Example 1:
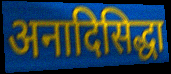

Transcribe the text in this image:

अनादिसिद्धा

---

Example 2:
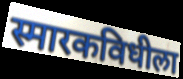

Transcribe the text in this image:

स्मारकविधीला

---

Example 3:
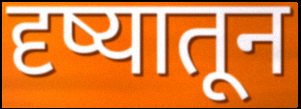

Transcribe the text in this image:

दृष्यातून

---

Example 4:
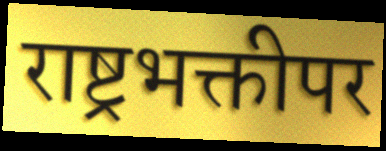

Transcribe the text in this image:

राष्ट्रभक्तीपर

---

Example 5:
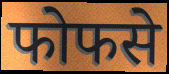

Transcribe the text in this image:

फोफसे